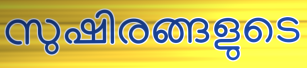
സുഷിരങ്ങളുടെ